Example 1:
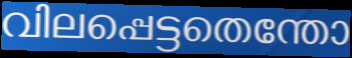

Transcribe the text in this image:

വിലപ്പെട്ടതെന്തോ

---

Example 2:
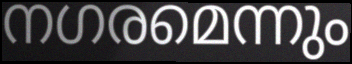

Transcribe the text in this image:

നഗരമെന്നും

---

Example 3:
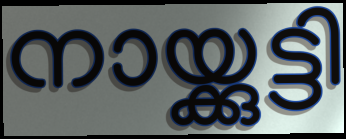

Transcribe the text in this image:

നായ്ക്കുട്ടി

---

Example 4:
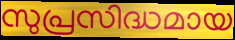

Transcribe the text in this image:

സുപ്രസിദ്ധമായ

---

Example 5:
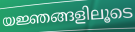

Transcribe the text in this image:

യജ്ഞങ്ങളിലൂടെ